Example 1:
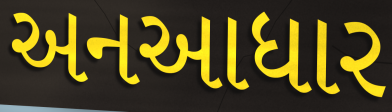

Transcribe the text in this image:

અનઆધાર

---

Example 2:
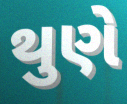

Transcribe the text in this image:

થુણે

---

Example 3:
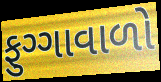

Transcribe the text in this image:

ફુગ્ગાવાળો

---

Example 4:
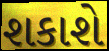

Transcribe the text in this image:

શકાશે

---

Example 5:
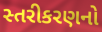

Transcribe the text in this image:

સ્તરીકરણનો